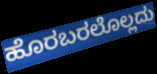
ಹೊರಬರಲೊಲ್ಲದು